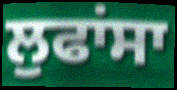
ਲੁਫਾਂਸਾ